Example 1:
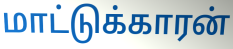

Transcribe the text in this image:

மாட்டுக்காரன்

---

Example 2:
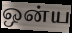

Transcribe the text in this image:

ஒன்ய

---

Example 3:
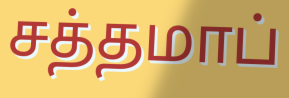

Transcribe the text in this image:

சத்தமாப்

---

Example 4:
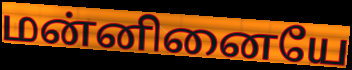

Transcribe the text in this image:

மன்னினையே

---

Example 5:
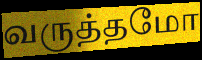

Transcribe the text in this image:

வருத்தமோ